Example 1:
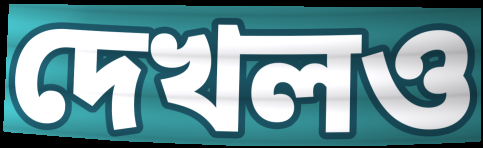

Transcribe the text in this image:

দেখলও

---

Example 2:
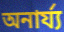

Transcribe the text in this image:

অনার্য্য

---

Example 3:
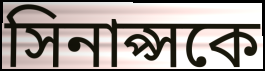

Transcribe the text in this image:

সিনাপ্সকে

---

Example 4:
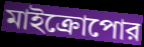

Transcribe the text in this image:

মাইক্রোপোর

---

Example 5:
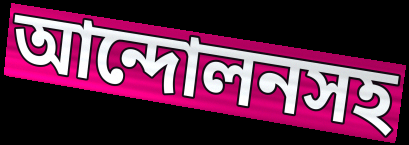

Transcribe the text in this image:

আন্দোলনসহ